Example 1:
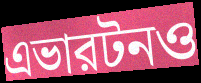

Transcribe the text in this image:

এভারটনও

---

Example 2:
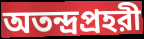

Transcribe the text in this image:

অতন্দ্রপ্রহরী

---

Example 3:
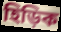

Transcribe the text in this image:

হিড়িক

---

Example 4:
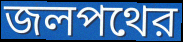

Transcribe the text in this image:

জলপথের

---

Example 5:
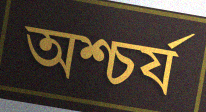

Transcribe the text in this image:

অশ্চর্য